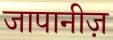
जापानीज़